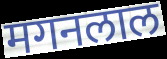
मगनलाल